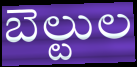
బెల్టుల